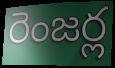
రెంజర్ల